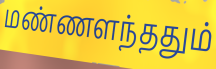
மண்ணளந்ததும்